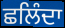
ਛਲਿੰਦਾ